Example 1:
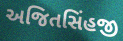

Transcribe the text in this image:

અજિતસિંહજી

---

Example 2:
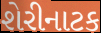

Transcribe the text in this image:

શેરીનાટક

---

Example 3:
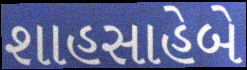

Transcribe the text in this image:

શાહસાહેબે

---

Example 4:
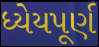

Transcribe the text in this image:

ધ્યેયપૂર્ણ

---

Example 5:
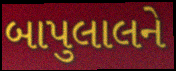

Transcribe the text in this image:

બાપુલાલને